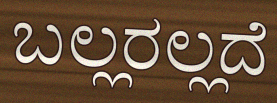
ಬಲ್ಲರಲ್ಲದೆ